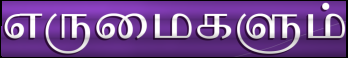
எருமைகளும்